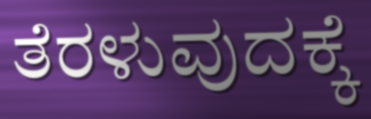
ತೆರಳುವುದಕ್ಕೆ